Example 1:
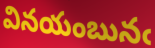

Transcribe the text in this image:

వినయంబునఁ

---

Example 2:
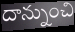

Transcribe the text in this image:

దాన్నుంచి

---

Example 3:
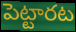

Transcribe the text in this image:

పెట్టారట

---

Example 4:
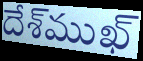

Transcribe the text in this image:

దేశ్‌ముఖ్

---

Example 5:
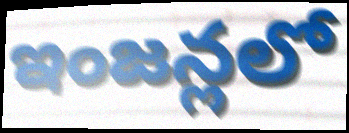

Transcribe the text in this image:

ఇంజన్లలో